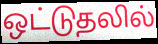
ஒட்டுதலில்